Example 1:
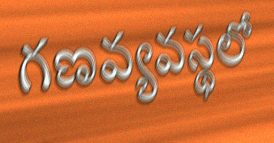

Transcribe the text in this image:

గణవ్యవస్థలో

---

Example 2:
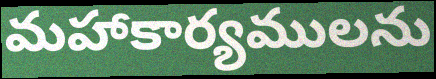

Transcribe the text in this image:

మహాకార్యములను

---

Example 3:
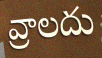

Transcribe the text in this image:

వ్రాలదు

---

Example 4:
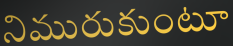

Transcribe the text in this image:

నిమురుకుంటూ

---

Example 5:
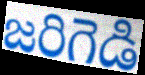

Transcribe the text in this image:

జరిగెడి